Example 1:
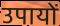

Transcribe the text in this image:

उपायों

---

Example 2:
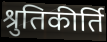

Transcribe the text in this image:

श्रुतिकीर्ति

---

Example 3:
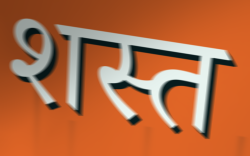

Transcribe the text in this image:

शस्त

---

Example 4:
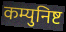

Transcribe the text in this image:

कम्युनिष्ट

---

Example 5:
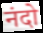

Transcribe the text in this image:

नंदो